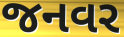
જનવર